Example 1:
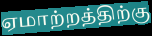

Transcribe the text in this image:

ஏமாற்றத்திற்கு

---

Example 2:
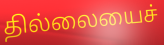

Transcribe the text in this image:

தில்லையைச்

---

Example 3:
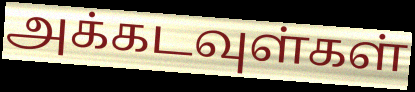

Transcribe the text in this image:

அக்கடவுள்கள்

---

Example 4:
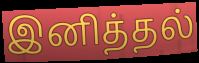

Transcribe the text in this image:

இனித்தல்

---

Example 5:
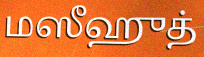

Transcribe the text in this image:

மஸீஹுத்